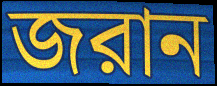
জরান